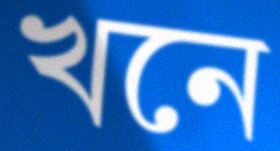
খনে